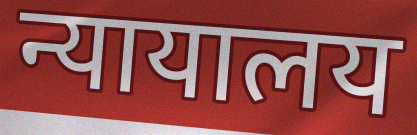
न्यायालय